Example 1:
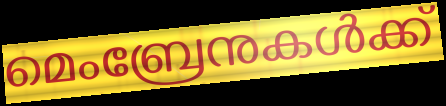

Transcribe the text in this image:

മെംബ്രേനുകൾക്ക്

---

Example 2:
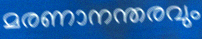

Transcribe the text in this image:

മരണാനന്തരവും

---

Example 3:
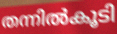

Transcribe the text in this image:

തന്നിൽകൂടി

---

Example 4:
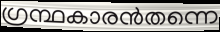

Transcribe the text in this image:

ഗ്രന്ഥകാരൻതന്നെ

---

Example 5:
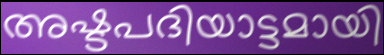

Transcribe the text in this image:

അഷ്ടപദിയാട്ടമായി